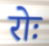
रोः